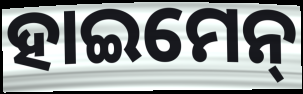
ହାଇମେନ୍